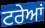
ਟਰੇਆਂ